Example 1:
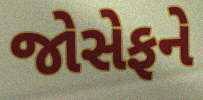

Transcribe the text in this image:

જોસેફને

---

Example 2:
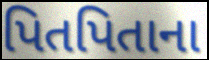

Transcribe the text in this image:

પિતપિતાના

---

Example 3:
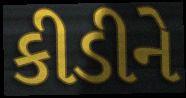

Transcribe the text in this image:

કીડીને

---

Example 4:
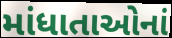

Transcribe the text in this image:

માંધાતાઓનાં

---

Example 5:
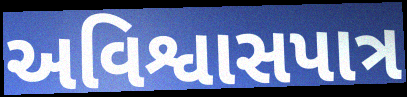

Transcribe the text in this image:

અવિશ્વાસપાત્ર